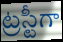
ట్రస్టీగా